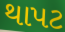
થાપટ